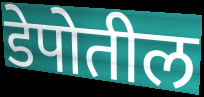
डेपोतील